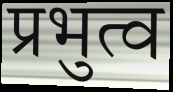
प्रभुत्व